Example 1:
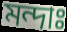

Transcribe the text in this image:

মন্দাঃ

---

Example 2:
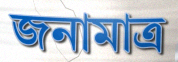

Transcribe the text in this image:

জনামাত্র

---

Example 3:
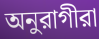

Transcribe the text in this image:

অনুরাগীরা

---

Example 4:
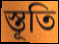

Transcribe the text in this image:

স্তূতি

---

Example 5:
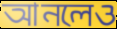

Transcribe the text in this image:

আনলেও